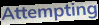
Attempting